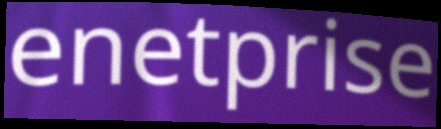
enetprise